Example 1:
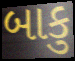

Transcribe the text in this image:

બાકુ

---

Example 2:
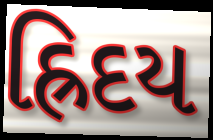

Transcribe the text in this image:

હ્રિદય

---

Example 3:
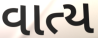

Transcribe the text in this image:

વાત્ય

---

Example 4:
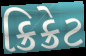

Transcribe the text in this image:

ક્રિક્રેટ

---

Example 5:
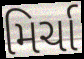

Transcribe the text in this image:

મિર્ચા